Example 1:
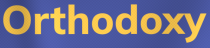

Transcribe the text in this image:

Orthodoxy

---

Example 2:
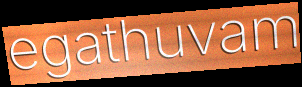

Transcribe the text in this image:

egathuvam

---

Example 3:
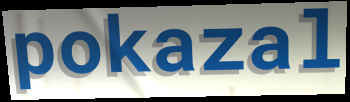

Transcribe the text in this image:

pokazal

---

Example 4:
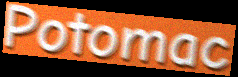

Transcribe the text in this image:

Potomac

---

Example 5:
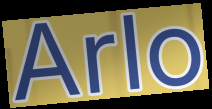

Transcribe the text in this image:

Arlo